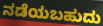
ನಡೆಯಬಹುದು